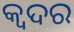
କ୍ୱଦର